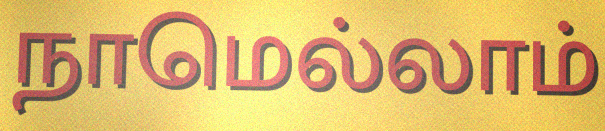
நாமெல்லாம்